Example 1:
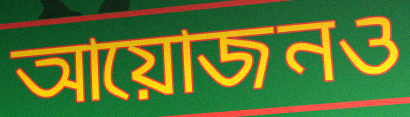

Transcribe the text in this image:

আয়োজনও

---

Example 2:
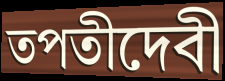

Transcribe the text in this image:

তপতীদেবী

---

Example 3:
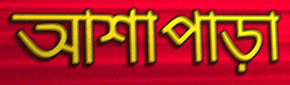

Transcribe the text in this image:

আশাপাড়া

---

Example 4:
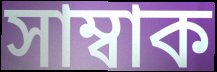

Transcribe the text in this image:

সাম্বাক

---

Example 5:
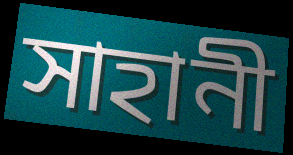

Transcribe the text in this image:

সাহানী